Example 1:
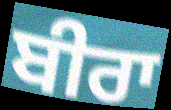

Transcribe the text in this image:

ਬੀਰਾ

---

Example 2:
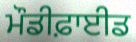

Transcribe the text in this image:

ਮੌਡੀਫ਼ਾਈਡ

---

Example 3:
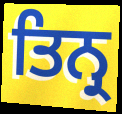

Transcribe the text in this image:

ਤਿਨ੍ਰ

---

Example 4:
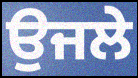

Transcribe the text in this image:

ਉਜਲੇ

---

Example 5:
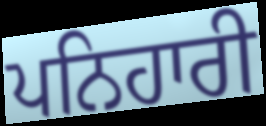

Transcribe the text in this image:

ਪਨਿਹਾਰੀ